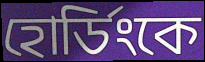
হোর্ডিংকে